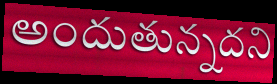
అందుతున్నదని